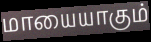
மாயையாகும்